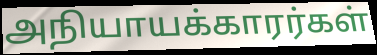
அநியாயக்காரர்கள்